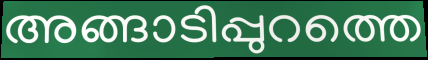
അങ്ങാടിപ്പുറത്തെ